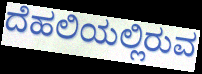
ದೆಹಲಿಯಲ್ಲಿರುವ